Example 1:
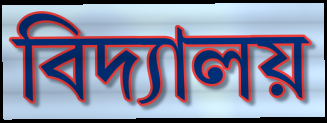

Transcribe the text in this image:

বিদ্যালয়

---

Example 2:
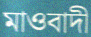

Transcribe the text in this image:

মাওবাদী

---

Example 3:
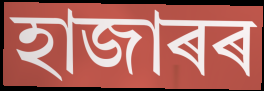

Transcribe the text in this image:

হাজাৰৰ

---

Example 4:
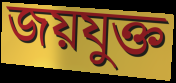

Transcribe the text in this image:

জয়যুক্ত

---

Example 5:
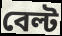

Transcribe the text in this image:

বেল্ট